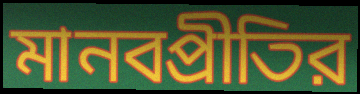
মানবপ্রীতির